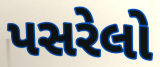
પસરેલો